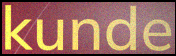
kunde